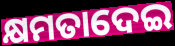
କ୍ଷମତାଦେଇ